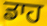
ਡਾਹ